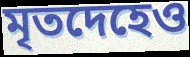
মৃতদেহেও